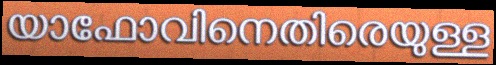
യാഫോവിനെതിരെയുള്ള